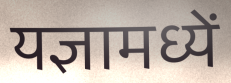
यज्ञामध्यें